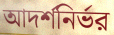
আদর্শনির্ভর